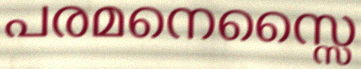
പരമനെസ്സൈ